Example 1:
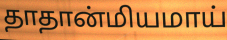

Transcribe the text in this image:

தாதான்மியமாய்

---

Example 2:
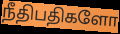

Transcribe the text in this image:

நீதிபதிகளோ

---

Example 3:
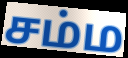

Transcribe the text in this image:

சம்ம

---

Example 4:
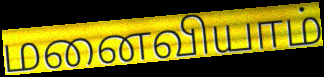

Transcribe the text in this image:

மனைவியாம்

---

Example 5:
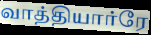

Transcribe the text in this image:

வாத்தியார்ரே